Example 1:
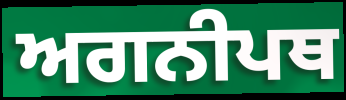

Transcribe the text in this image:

ਅਗਨੀਪਥ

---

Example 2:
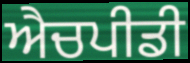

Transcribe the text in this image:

ਐਚਪੀਡੀ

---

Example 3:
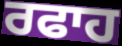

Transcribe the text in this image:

ਰਫਾਹ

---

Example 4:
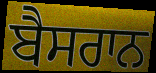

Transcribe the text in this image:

ਬੈਸਰਾਨ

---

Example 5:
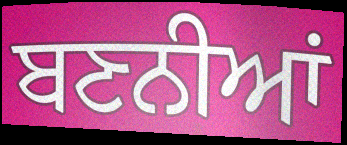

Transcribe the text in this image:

ਬਣਨੀਆਂ